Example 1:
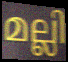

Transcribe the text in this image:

മല്ലി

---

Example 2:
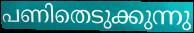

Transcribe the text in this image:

പണിതെടുക്കുന്നു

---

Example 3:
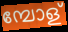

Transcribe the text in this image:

മ്പോള്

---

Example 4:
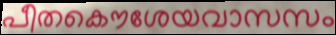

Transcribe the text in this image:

പീതകൌശേയവാസസം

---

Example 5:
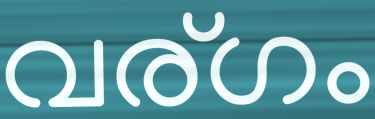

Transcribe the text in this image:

വര്ഗം